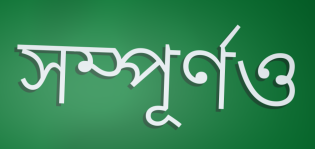
সম্পূর্ণও